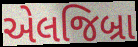
એલજિબ્રા